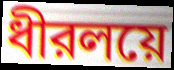
ধীরলয়ে